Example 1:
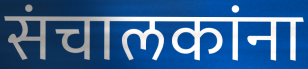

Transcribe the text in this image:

संचालकांना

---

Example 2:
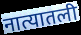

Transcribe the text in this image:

नात्यातली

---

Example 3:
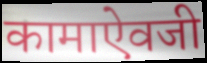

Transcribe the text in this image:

कामाऐवजी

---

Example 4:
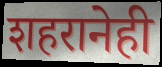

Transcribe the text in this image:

शहरानेही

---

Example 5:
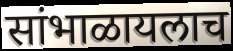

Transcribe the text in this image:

सांभाळायलाच